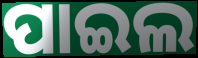
ପାଇଲ